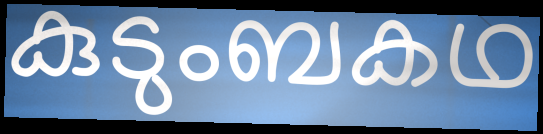
കുടുംബകഥ